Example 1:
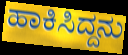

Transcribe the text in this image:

ಹಾಕಿಸಿದ್ದನು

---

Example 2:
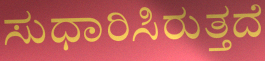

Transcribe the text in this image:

ಸುಧಾರಿಸಿರುತ್ತದೆ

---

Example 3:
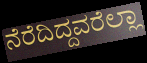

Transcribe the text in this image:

ನೆರೆದಿದ್ದವರೆಲ್ಲಾ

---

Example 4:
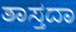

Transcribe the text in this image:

ತಾಸ್ತದಾ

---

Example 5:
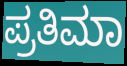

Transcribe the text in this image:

ಪ್ರತಿಮಾ